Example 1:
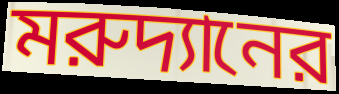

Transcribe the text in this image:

মরুদ্যানের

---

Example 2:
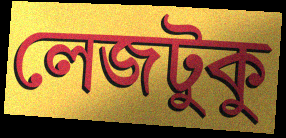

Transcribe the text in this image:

লেজটুকু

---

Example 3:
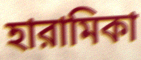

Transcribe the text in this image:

হারামিকা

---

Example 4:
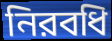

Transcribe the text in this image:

নিরবধি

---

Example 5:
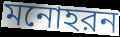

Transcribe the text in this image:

মনোহরন